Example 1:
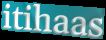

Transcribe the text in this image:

itihaas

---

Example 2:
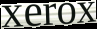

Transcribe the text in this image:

xerox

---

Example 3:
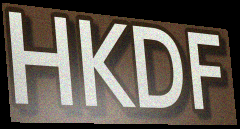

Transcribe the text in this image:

HKDF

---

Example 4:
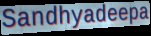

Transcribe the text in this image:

Sandhyadeepa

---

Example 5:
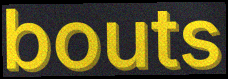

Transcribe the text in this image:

bouts